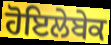
ਹੋਇਲੇਬੇਕ